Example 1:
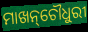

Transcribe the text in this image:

ମାଖନ୍‌ଚୌଧୁରୀ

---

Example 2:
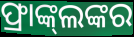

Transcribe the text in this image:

ଫ୍ରାଙ୍କ୍‌ଲଙ୍କର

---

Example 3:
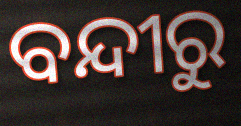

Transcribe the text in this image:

ବନ୍ଦୀରୁ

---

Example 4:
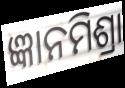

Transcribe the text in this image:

ଜ୍ଞାନମିଶ୍ରା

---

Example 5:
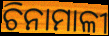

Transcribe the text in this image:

ଚିନାମାଳୀ